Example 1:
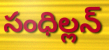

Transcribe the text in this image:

సంధిల్లన్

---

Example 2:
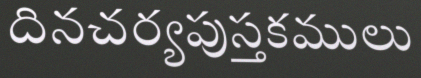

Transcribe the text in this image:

దినచర్యపుస్తకములు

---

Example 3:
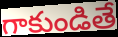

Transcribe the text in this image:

గాకుండితే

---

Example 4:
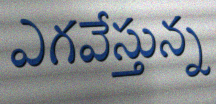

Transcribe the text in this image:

ఎగవేస్తున్న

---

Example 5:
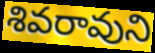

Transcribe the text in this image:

శివరావుని